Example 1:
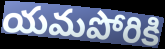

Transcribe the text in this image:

యమపోరికి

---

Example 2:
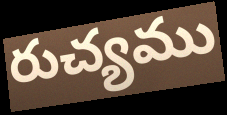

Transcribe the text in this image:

రుచ్యము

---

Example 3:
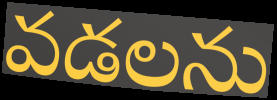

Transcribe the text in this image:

వడలను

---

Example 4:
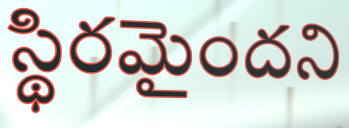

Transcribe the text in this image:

స్థిరమైందని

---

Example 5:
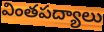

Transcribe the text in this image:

వింతపద్యాలు